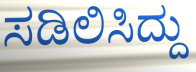
ಸಡಿಲಿಸಿದ್ದು